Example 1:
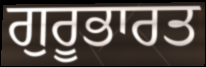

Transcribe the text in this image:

ਗੁਰੂਭਾਰਤ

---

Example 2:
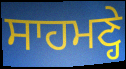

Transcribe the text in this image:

ਸਾਹਮਣ੍ਹੇ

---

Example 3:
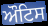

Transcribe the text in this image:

ਔਟਿਸ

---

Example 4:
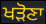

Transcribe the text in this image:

ਖੜੋਣਾ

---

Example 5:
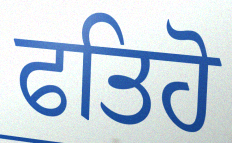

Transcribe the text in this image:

ਫਤਿਹੋ